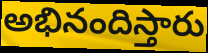
అభినందిస్తారు